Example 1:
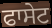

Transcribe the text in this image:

ਫਾਸੇਟ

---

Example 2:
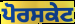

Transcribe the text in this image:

ਪੋਰਸਕੇਟ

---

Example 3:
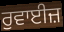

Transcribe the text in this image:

ਰੁਵਾਈਜ਼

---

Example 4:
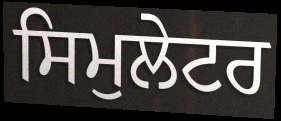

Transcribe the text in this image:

ਸਿਮੁਲੇਟਰ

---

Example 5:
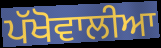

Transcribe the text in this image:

ਪੱਖੋਵਾਲੀਆ